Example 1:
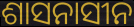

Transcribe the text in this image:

ଶାସନାସୀନ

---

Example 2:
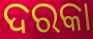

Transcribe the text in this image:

ଦରକା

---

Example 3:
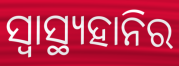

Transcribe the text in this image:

ସ୍ଵାସ୍ଥ୍ୟହାନିର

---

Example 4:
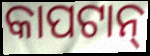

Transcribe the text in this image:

କାପଟାନ୍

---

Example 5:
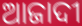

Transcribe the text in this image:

ଆଜାଦୀ